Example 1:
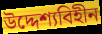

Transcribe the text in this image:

উদ্দেশ্যবিহীন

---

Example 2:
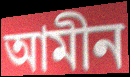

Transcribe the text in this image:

আমীন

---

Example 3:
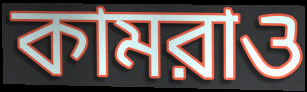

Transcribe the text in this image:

কামরাও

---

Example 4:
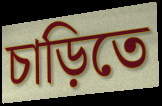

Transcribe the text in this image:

চাড়িতে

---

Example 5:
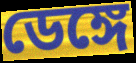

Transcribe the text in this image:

ডেঙ্গে